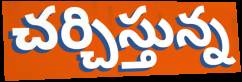
చర్చిస్తున్న